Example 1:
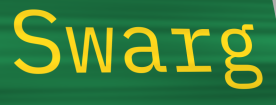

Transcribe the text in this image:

Swarg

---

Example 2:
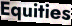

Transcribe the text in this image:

Equities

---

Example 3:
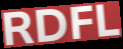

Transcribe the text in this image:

RDFL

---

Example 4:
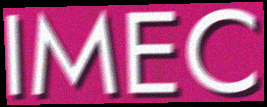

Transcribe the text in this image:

IMEC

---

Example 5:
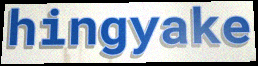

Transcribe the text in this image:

hingyake